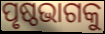
ପୃଷ୍ଠଭାଗକୁ